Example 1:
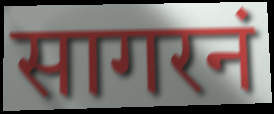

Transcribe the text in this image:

सागरनं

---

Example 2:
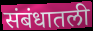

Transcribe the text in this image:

संबंधातली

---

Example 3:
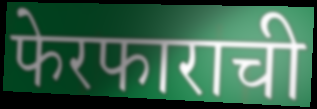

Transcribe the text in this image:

फेरफाराची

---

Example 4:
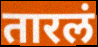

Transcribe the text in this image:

तारलं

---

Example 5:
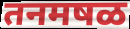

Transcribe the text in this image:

तनमषळ